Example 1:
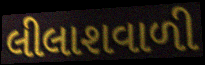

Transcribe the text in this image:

લીલાશવાળી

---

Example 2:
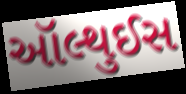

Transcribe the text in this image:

ઑલ્થુઈસ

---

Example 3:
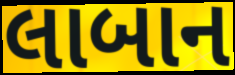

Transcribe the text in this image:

લાબાન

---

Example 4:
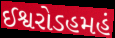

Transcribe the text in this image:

ઈશ્વરોઽહમહં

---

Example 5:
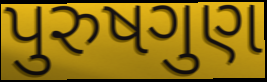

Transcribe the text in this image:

પુરુષગુણ